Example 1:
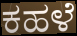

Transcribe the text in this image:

ಕಹಳೆ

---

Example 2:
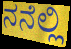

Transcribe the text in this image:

ನನೆಲ್ಲಿ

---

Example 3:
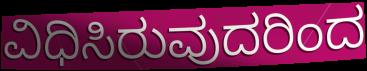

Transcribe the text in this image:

ವಿಧಿಸಿರುವುದರಿಂದ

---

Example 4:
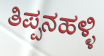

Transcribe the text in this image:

ತಿಪ್ಪನಹಳ್ಳಿ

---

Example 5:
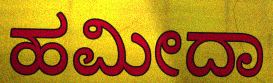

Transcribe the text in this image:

ಹಮೀದಾ